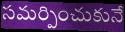
సమర్పించుకునే